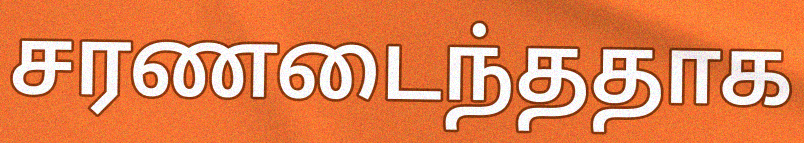
சரணடைந்ததாக